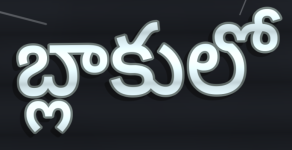
బ్లాకులో